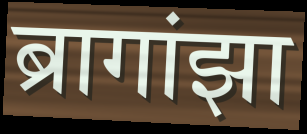
ब्रागांझा